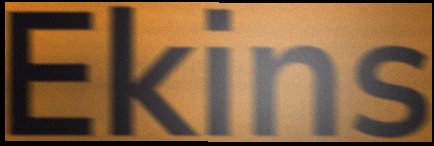
Ekins